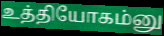
உத்தியோகம்னு